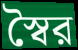
স্বৈর